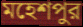
মহেশপুর